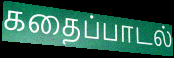
கதைப்பாடல்